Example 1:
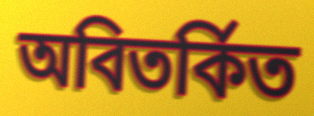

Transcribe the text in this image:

অবিতর্কিত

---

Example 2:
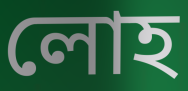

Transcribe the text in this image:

লোহ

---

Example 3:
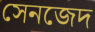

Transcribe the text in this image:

সেনজেদ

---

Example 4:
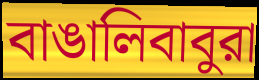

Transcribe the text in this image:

বাঙালিবাবুরা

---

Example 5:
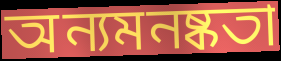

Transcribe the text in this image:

অন্যমনষ্কতা